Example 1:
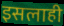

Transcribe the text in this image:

इसलाही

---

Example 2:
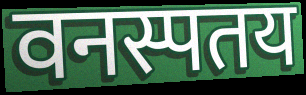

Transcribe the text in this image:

वनस्पतय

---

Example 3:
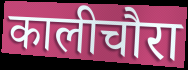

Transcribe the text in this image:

कालीचौरा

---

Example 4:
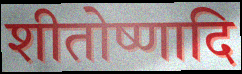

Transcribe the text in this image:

शीतोष्णादि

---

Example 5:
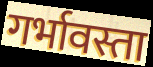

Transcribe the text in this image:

गर्भावस्ता